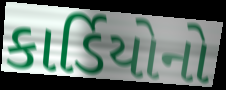
કાર્ડિયોનો